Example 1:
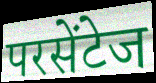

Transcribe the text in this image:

परसेंटेज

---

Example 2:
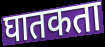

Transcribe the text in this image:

घातकता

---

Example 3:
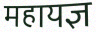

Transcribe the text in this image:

महायज्ञ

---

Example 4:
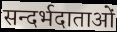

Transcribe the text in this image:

सन्दर्भदाताओं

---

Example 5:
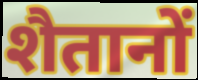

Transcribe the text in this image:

शैतानों